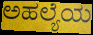
ಅಹಲ್ಯೆಯ